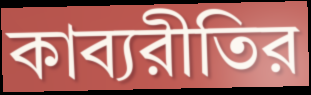
কাব্যরীতির